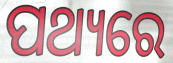
ପଥ୍ୟରେ